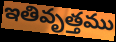
ఇతివృత్తము